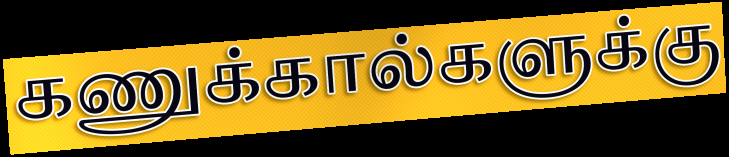
கணுக்கால்களுக்கு